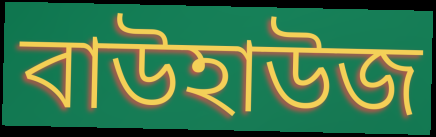
বাউহাউজ